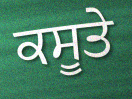
ਕਸੂਤੇ